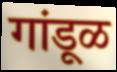
गांडूळ